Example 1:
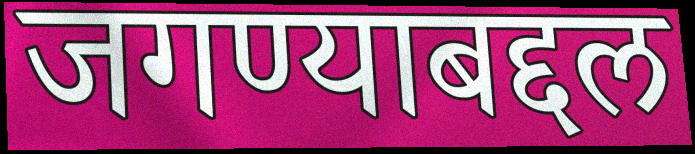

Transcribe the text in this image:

जगण्याबद्दल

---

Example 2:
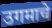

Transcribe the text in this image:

उगमाचे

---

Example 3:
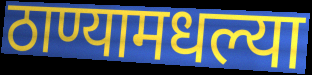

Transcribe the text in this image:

ठाण्यामधल्या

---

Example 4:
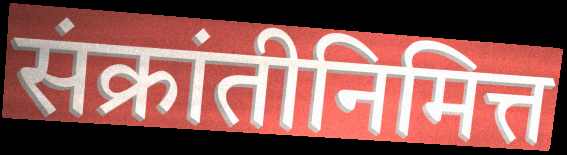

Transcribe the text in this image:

संक्रांतीनिमित्त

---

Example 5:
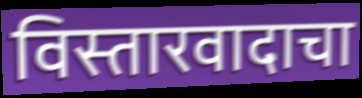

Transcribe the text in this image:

विस्तारवादाचा